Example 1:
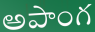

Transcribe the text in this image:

అపాంగ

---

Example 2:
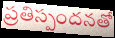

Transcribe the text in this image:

ప్రతిస్పందనతో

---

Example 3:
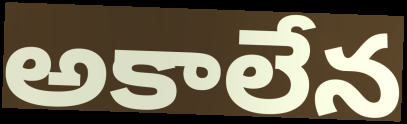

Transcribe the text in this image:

అకాలేన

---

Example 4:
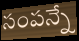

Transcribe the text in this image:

సంపన్నే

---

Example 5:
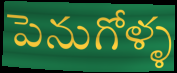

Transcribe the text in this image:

పెనుగోళ్ళ